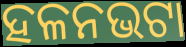
ହଳନଭଟା